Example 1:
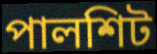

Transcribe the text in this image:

পালশিট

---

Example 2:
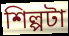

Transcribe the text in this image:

শিল্পটা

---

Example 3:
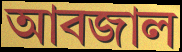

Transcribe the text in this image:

আবজাল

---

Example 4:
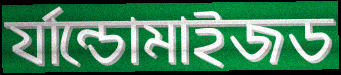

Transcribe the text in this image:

র্যান্ডোমাইজড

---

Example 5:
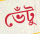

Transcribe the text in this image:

ভেঁটু